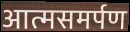
आत्मसमर्पण